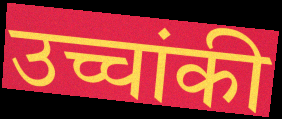
उच्चांकी